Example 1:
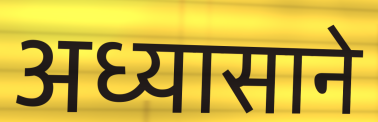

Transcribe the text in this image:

अध्यासाने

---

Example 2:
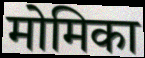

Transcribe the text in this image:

मोमिका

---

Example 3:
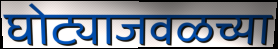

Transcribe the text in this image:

घोट्याजवळच्या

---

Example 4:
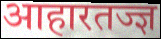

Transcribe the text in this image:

आहारतज्ज्ञ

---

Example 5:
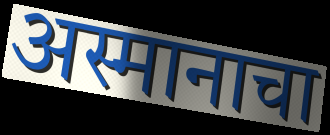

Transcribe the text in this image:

अस्मानाचा